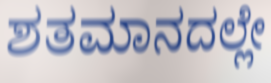
ಶತಮಾನದಲ್ಲೇ